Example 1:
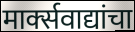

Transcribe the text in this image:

मार्क्‍सवाद्यांचा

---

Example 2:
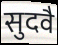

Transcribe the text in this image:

सुदवै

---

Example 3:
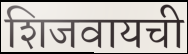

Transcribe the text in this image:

शिजवायची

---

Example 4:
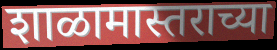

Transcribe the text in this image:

शाळामास्तराच्या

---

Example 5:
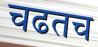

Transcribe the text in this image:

चढतच